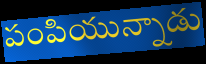
పంపియున్నాడు